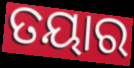
ତୟାର